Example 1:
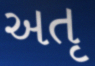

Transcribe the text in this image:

અતૃ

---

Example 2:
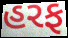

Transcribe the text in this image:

હરફ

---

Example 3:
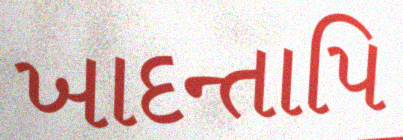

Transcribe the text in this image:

ખાદન્તાપિ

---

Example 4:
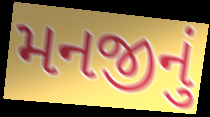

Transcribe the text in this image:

મનજીનું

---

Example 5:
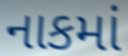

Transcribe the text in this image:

નાકમાં